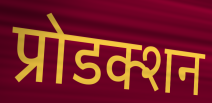
प्रोडक्शन